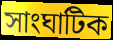
সাংঘাটিক